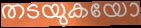
തടയുകയോ